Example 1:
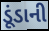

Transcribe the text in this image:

ડૂંડાની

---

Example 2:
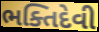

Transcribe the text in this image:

ભક્તિદેવી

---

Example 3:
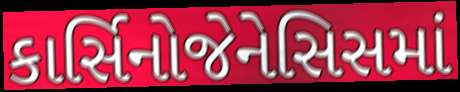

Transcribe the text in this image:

કાર્સિનોજેનેસિસમાં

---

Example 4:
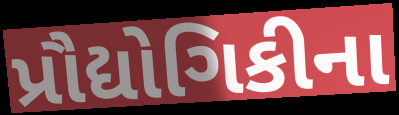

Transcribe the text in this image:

પ્રૌદ્યોગિકીના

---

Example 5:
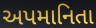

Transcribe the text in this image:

અપમાનિતા